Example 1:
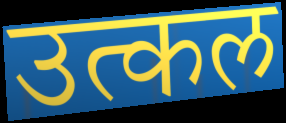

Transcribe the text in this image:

उत्कल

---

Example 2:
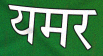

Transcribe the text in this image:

यमर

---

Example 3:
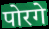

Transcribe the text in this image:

पोरगे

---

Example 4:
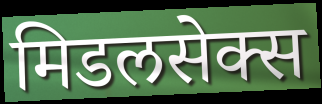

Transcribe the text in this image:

मिडलसेक्स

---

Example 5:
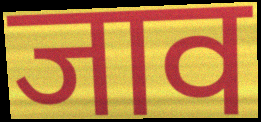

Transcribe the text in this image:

जाव